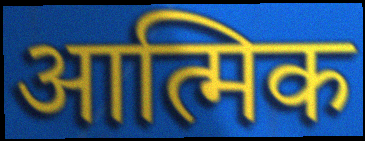
आत्मिक